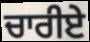
ਚਾਰੀਏ